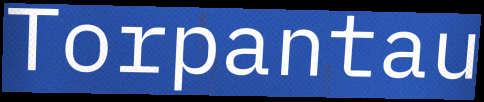
Torpantau